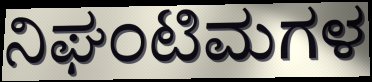
ನಿಘಂಟಿಮಗಳ